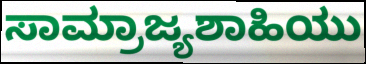
ಸಾಮ್ರಾಜ್ಯಶಾಹಿಯು